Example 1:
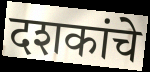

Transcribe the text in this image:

दशकांचे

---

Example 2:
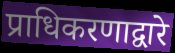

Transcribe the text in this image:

प्राधिकरणाद्वारे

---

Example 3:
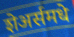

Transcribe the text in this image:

शेअर्समधे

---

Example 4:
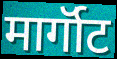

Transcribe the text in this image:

मार्गॉट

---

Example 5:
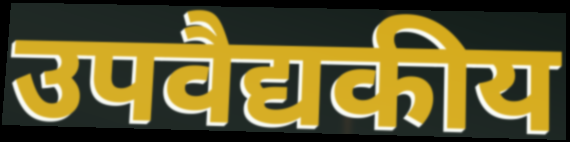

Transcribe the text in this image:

उपवैद्यकीय